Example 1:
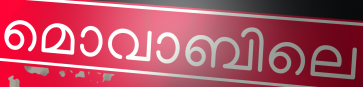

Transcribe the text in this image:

മൊവാബിലെ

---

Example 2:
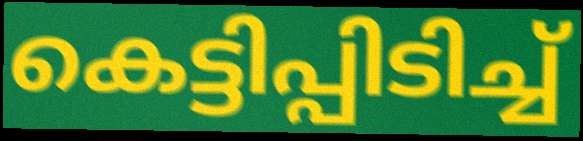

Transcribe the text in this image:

കെട്ടിപ്പിടിച്ച്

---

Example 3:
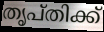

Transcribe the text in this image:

തൃപ്തിക്ക്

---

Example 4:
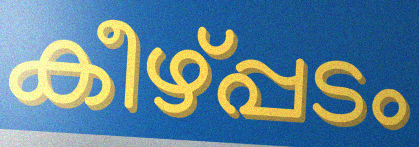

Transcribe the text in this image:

കീഴ്പ്പടം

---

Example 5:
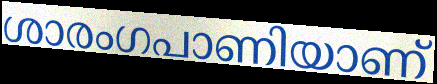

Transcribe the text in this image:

ശാരംഗപാണിയാണ്